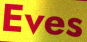
Eves